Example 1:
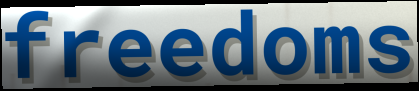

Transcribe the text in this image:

freedoms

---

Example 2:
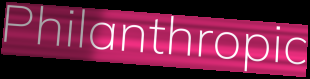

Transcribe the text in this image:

Philanthropic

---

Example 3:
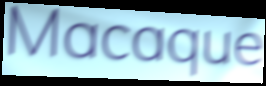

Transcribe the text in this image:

Macaque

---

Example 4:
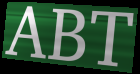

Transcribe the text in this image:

ABT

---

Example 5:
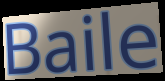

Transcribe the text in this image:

Baile